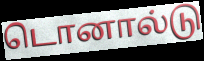
டொனால்டு